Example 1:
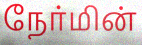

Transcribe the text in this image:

நேர்மின்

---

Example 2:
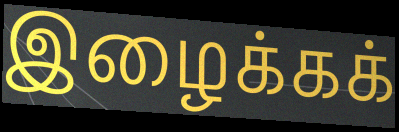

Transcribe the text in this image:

இழைக்கக்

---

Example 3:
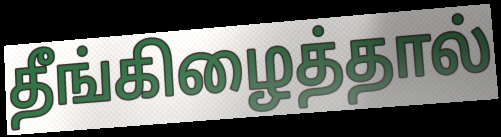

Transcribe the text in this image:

தீங்கிழைத்தால்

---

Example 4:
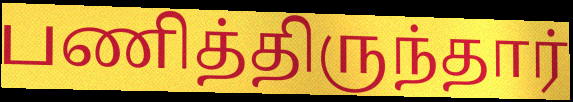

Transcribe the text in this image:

பணித்திருந்தார்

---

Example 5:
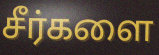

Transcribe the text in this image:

சீர்களை